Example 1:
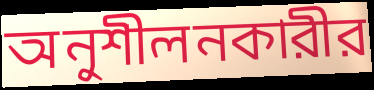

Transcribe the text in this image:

অনুশীলনকারীর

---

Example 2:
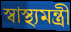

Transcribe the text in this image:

স্বাস্থ্যমন্ত্রী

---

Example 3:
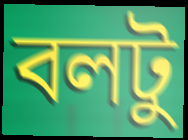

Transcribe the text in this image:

বলটু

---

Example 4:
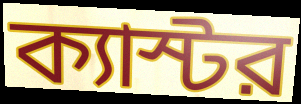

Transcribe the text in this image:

ক্যাস্টর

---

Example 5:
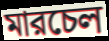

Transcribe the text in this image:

মারচেল